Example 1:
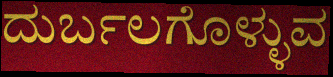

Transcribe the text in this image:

ದುರ್ಬಲಗೊಳ್ಳುವ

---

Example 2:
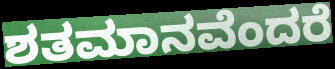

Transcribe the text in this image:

ಶತಮಾನವೆಂದರೆ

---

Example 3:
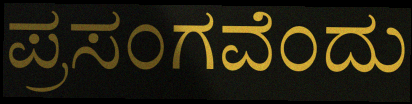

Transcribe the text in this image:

ಪ್ರಸಂಗವೆಂದು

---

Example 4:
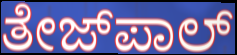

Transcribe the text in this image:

ತೇಜ್‌ಪಾಲ್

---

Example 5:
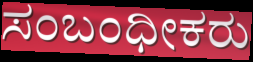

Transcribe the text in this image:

ಸಂಬಂಧೀಕರು